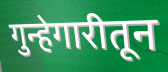
गुन्हेगारीतून